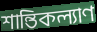
শান্তিকল্যাণ